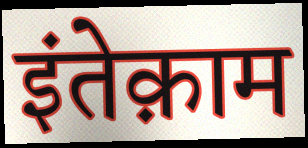
इंतेक़ाम